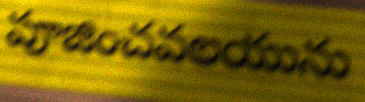
పూజించవలయును